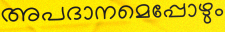
അപദാനമെപ്പോഴും